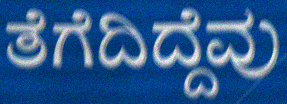
ತೆಗೆದಿದ್ದೆವು